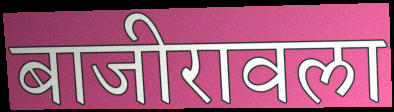
बाजीरावला